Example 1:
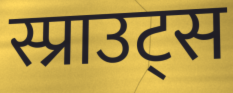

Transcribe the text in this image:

स्प्राउट्स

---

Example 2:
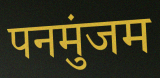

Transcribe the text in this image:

पनमुंजम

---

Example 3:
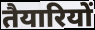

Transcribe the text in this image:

तैयारियों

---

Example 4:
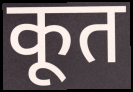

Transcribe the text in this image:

कूत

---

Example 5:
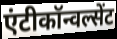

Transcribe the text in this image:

एंटीकॉन्वल्सेंट